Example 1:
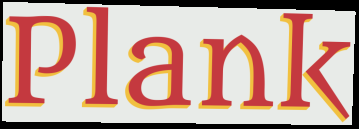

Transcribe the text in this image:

Plank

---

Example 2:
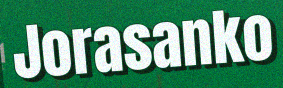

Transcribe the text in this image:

Jorasanko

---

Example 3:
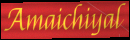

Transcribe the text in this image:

Amaichiyal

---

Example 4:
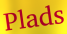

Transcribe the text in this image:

Plads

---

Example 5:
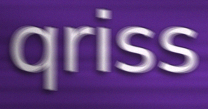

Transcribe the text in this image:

qriss